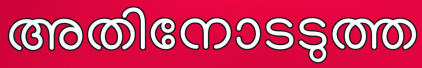
അതിനോടടുത്ത